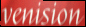
venision